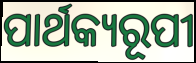
ପାର୍ଥକ୍ୟରୂପୀ